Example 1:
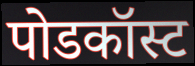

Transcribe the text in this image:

पोडकॉस्ट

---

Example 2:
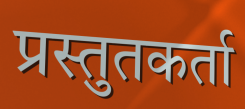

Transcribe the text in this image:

प्रस्तुतकर्ता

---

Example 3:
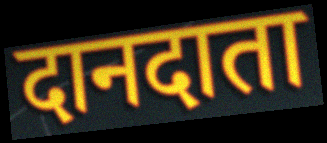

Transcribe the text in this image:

दानदाता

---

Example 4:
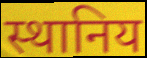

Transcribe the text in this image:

स्थानिय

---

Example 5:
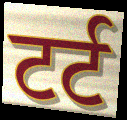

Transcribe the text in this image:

टर्ट